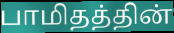
பாமிதத்தின்